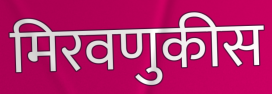
मिरवणुकीस